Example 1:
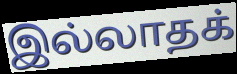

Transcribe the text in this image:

இல்லாதக்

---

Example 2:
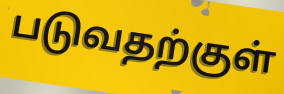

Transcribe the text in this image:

படுவதற்குள்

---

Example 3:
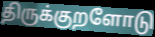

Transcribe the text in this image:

திருக்குறளோடு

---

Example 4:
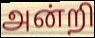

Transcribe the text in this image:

அன்றி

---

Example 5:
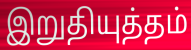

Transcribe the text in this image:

இறுதியுத்தம்